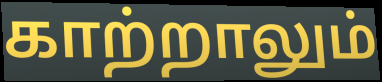
காற்றாலும்